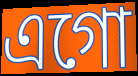
এগো